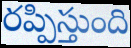
రప్పిస్తుంది